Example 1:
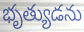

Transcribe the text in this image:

భృత్యుడను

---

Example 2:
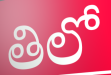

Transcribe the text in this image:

తిలో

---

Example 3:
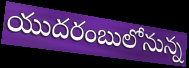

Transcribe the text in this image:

యుదరంబులోనున్న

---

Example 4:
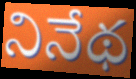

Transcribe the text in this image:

నినేథ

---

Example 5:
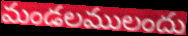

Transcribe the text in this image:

మండలములందు